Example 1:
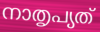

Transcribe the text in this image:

നാതൃപ്യത്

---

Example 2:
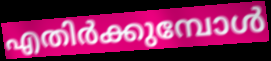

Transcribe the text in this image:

എതിർക്കുമ്പോൾ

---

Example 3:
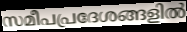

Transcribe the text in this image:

സമീപപ്രദേശങ്ങളിൽ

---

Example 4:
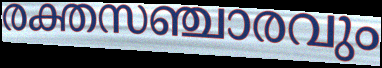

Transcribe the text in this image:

രക്തസഞ്ചാരവും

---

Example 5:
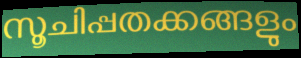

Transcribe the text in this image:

സൂചിപ്പതക്കങ്ങളും